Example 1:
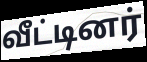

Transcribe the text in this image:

வீட்டினர்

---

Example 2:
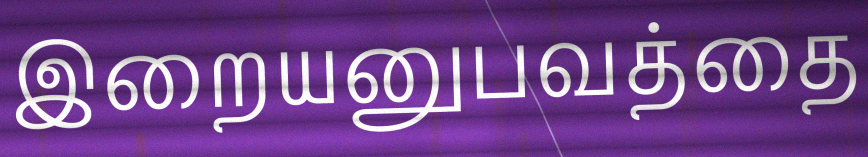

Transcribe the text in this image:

இறையனுபவத்தை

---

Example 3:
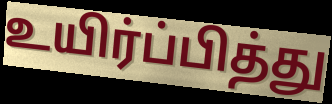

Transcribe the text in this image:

உயிர்ப்பித்து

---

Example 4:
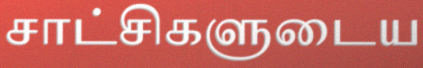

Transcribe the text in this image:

சாட்சிகளுடைய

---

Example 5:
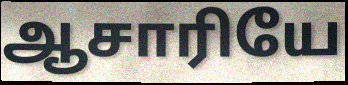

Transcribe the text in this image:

ஆசாரியே